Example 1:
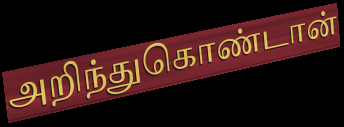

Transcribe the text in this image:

அறிந்துகொண்டான்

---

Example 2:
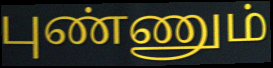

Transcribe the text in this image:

புண்ணும்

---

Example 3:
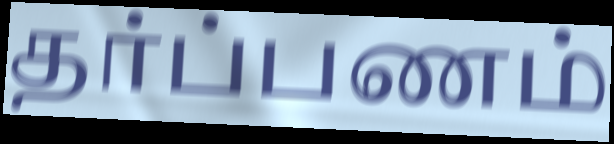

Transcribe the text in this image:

தர்ப்பணம்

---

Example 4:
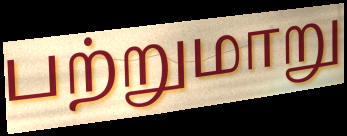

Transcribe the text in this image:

பற்றுமாறு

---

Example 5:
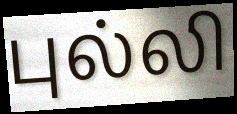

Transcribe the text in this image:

புல்லி